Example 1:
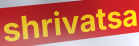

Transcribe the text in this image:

shrivatsa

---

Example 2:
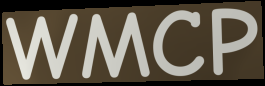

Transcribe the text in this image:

WMCP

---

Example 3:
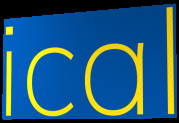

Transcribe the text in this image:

ical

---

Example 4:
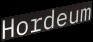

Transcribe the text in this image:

Hordeum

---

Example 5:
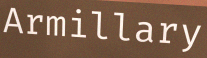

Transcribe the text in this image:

Armillary